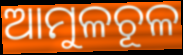
ଆମୁଳଚୂଳ